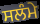
ਸਲੰਮੇ